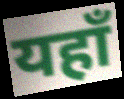
यहाँ